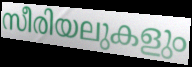
സീരിയലുകളും